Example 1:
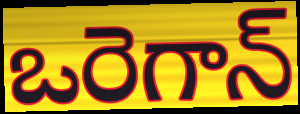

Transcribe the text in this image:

ఒరెగాన్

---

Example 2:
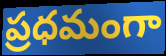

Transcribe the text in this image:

ప్రధమంగా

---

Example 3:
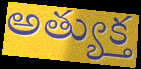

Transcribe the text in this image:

అత్యుక్త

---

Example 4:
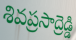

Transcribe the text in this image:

శివప్రసాద్రెడ్డి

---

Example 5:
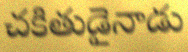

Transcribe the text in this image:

చకితుడైనాడు